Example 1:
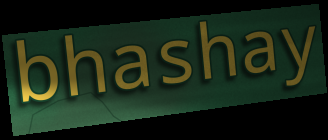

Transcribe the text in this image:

bhashay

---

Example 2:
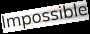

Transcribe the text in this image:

Impossible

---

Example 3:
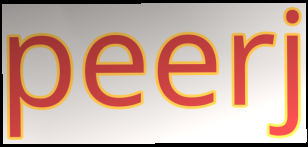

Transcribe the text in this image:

peerj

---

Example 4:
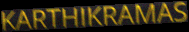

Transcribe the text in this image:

KARTHIKRAMAS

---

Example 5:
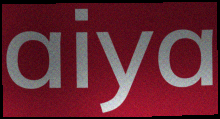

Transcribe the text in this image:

aiya